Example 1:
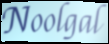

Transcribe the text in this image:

Noolgal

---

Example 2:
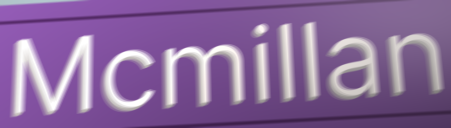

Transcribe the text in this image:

Mcmillan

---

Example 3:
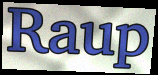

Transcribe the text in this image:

Raup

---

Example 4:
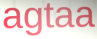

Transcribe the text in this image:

agtaa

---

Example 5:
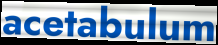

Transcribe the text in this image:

acetabulum